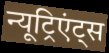
न्यूट्रिएंट्स